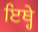
ਇਥ੍ਹੇ